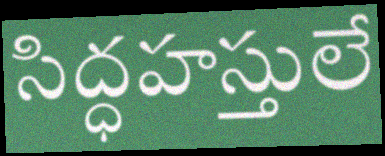
సిద్ధహస్తులే